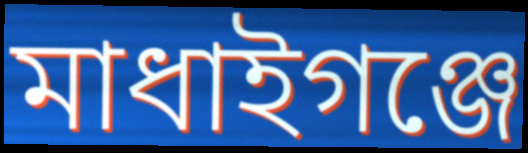
মাধাইগঞ্জে